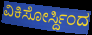
ವಿಕಿಸೋರ್ಸ್ದಿಂದ